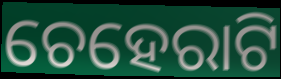
ଚେହେରାଟି